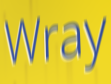
Wray